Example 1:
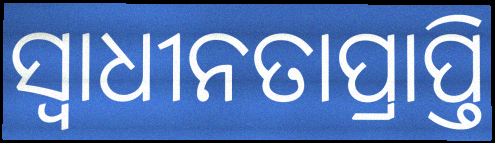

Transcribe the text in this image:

ସ୍ଵାଧୀନତାପ୍ରାପ୍ତି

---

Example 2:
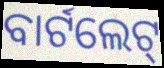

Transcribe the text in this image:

ବାର୍ଟଲେଟ୍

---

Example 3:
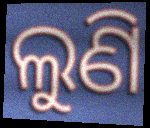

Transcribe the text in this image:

ଲୁଣି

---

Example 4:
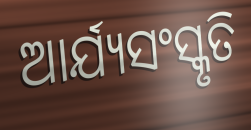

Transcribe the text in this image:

ଆର୍ଯ୍ୟସଂସ୍କୃତି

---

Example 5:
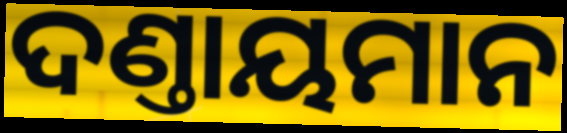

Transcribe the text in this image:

ଦଣ୍ତାୟମାନ